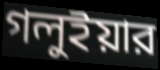
গলুইয়ার